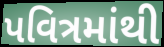
પવિત્રમાંથી